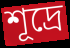
শূদ্রে